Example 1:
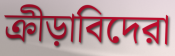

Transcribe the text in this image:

ক্রীড়াবিদেরা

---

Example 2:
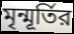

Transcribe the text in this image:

মৃন্মূর্তির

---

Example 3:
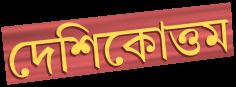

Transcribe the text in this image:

দেশিকোত্তম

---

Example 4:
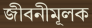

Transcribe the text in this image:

জীবনীমূলক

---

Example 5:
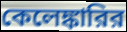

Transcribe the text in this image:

কেলেঙ্কারির